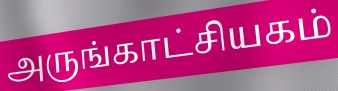
அருங்காட்சியகம்